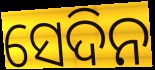
ସେଦିନ